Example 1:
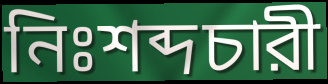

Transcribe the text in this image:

নিঃশব্দচারী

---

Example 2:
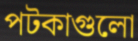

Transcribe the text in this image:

পটকাগুলো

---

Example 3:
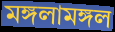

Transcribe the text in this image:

মঙ্গলামঙ্গল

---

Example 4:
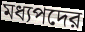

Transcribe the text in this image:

মধ্যপদের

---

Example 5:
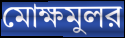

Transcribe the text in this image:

মোক্ষমুলর